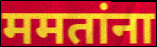
ममतांना